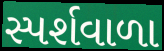
સ્પર્શવાળા